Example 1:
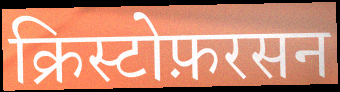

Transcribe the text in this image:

क्रिस्टोफ़रसन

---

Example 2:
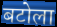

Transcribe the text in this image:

बटोला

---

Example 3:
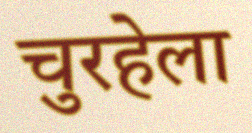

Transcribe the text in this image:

चुरहेला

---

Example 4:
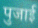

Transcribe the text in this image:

पुजाई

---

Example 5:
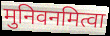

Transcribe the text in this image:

मुनिवनमित्वा